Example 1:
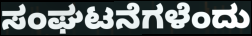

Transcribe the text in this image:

ಸಂಘಟನೆಗಳೆಂದು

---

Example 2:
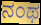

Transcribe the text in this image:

ನಂಥ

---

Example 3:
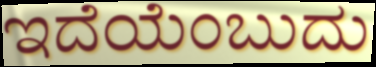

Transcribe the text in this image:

ಇದೆಯೆಂಬುದು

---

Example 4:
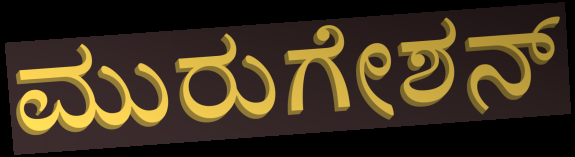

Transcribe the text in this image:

ಮುರುಗೇಶನ್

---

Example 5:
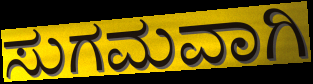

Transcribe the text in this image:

ಸುಗಮವಾಗಿ